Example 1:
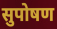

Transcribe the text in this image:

सुपोषण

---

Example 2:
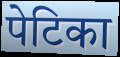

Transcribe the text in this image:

पेटिका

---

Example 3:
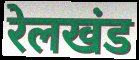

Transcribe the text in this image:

रेलखंड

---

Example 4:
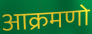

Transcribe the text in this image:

आक्रमणो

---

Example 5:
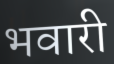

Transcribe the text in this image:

भवारी